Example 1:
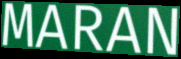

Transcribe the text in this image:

MARAN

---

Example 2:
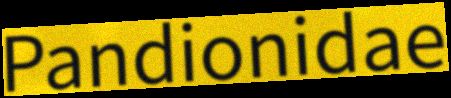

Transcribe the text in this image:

Pandionidae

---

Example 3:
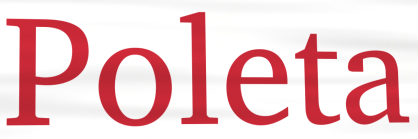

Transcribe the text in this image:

Poleta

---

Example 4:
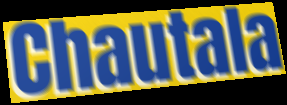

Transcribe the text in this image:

Chautala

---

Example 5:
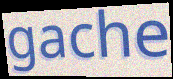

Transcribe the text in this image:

gache